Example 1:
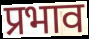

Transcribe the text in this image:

प्रभाव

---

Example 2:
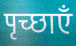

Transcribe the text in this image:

पृच्छाएँ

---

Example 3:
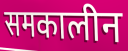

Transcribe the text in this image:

समकालीन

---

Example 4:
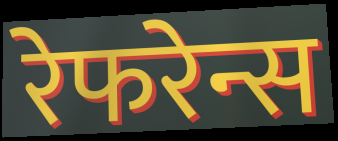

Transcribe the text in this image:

रेफरेन्स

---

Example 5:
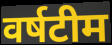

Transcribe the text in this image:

वर्षटीम